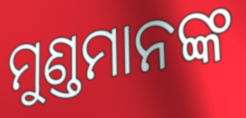
ମୁଣ୍ଡମାନଙ୍କ